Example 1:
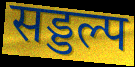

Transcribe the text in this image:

सड्डल्प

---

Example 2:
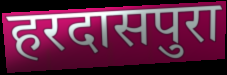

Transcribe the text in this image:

हरदासपुरा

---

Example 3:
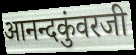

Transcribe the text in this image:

आनन्दकुंवरजी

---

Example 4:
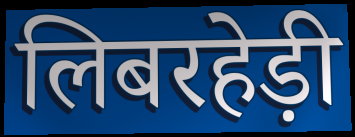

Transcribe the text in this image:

लिबरहेड़ी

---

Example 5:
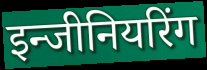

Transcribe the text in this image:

इन्जीनियरिंग